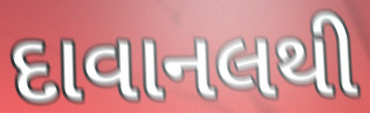
દાવાનલથી